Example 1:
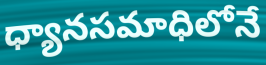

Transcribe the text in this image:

ధ్యానసమాధిలోనే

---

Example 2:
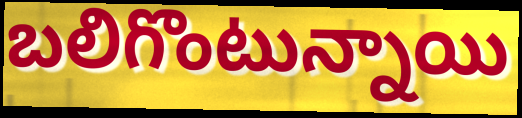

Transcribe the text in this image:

బలిగొంటున్నాయి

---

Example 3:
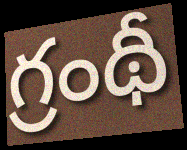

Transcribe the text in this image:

గ్రంథీ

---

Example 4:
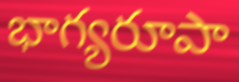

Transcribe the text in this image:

భాగ్యరూపా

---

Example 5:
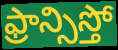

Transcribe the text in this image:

ఫ్రాన్సిస్తో